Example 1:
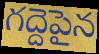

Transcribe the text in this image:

గద్దెపైన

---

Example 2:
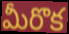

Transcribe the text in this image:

మీరొక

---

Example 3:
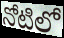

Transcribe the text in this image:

నోటిలో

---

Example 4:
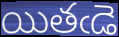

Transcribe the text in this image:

యితఁడె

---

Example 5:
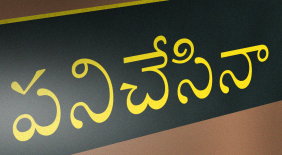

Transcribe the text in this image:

పనిచేసినా